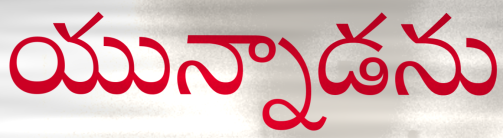
యున్నాడను